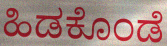
ಹಿಡಕೊಂಡೆ